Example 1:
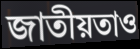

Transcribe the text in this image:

জাতীয়তাও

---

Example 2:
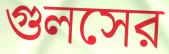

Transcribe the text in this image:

গুলসের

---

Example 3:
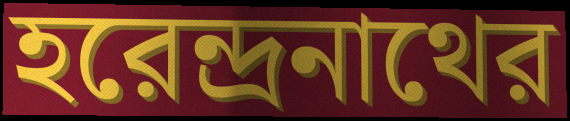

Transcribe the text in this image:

হরেন্দ্রনাথের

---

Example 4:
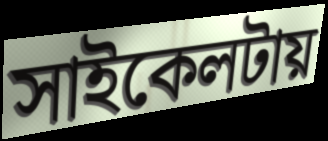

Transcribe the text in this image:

সাইকেলটায়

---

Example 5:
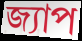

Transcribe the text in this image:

জ্যাপ